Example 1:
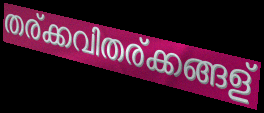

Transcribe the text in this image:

തര്ക്കവിതര്ക്കങ്ങള്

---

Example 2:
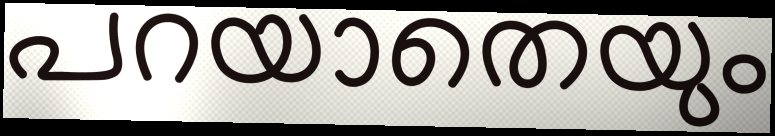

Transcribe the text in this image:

പറയാതെയും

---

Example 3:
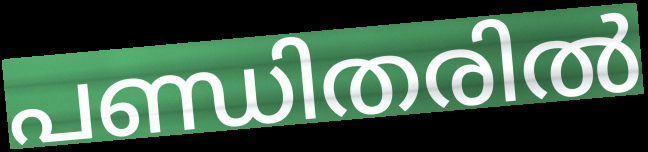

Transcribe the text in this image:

പണ്ഡിതരിൽ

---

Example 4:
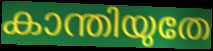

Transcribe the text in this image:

കാന്തിയുതേ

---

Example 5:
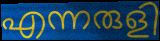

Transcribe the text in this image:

എന്നരുളി